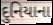
દુનિયાના